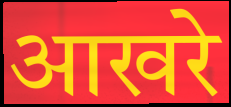
आखरे